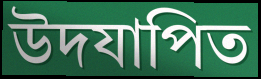
উদযাপিত